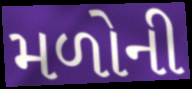
મળોની